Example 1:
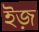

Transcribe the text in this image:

ইজ়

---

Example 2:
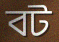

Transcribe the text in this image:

বট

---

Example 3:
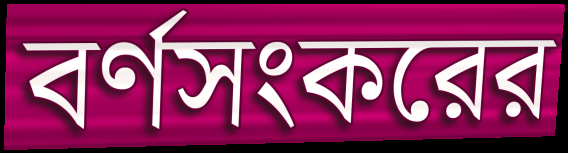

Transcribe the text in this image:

বর্ণসংকরের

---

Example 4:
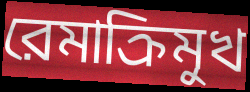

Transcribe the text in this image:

রেমাক্রিমুখ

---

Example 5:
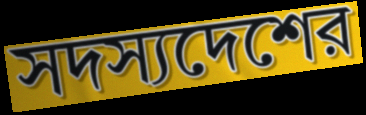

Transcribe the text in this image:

সদস্যদেশের